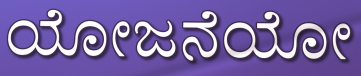
ಯೋಜನೆಯೋ